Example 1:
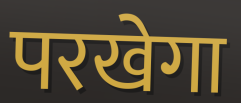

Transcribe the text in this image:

परखेगा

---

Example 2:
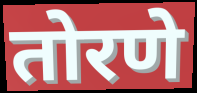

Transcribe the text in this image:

तोरणे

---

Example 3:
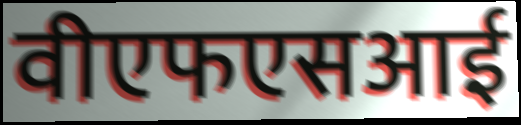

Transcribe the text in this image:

वीएफएसआई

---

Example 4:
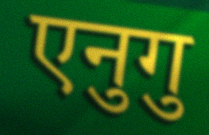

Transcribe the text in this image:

एनुगु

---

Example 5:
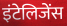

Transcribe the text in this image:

इंटेलिजेंस